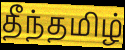
தீந்தமிழ்